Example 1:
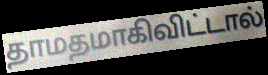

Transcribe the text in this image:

தாமதமாகிவிட்டால்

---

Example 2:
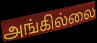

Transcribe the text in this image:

அங்கில்லை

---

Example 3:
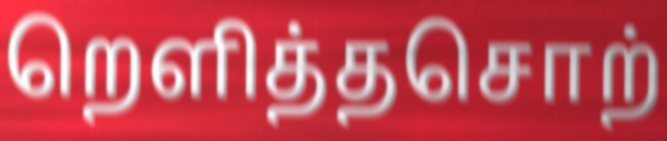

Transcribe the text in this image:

றெளித்தசொற்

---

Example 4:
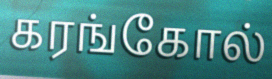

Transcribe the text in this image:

கரங்கோல்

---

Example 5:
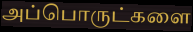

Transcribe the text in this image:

அப்பொருட்களை